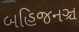
બહિજનઞ્ચ